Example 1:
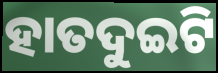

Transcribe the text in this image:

ହାତଦୁଇଟି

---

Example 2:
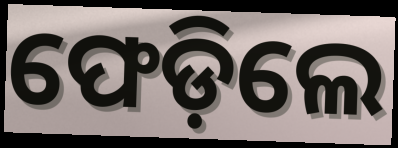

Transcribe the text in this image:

ଫେଡ଼ିଲେ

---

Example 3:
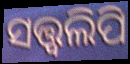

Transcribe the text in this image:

ସତ୍ତ୍ୱଲିପି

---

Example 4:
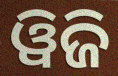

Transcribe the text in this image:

ୱିଜି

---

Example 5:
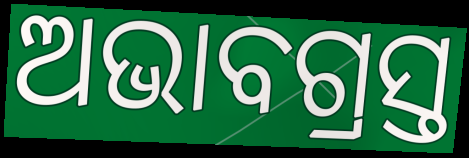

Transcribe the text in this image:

ଅଭାବଗ୍ରସ୍ତ